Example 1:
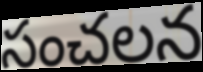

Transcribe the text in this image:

సంచలన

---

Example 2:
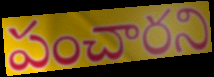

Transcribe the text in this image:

పంచారని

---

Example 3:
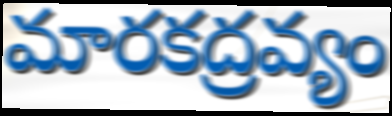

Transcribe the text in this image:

మారకద్రవ్యం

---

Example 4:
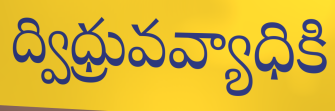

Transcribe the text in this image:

ద్విధ్రువవ్యాధికి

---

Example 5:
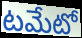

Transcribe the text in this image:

టమేటో